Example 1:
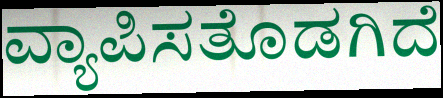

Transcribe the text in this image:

ವ್ಯಾಪಿಸತೊಡಗಿದೆ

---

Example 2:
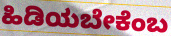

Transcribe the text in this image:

ಹಿಡಿಯಬೇಕೆಂಬ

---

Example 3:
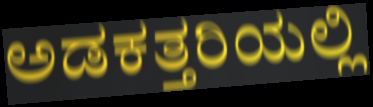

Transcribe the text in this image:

ಅಡಕತ್ತರಿಯಲ್ಲಿ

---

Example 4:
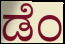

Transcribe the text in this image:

ಡೆಂ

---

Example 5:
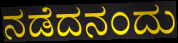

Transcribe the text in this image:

ನಡೆದನಂದು